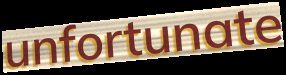
unfortunate